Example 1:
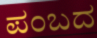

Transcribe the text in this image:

ಪಂಬದ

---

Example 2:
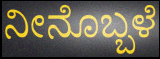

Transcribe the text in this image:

ನೀನೊಬ್ಬಳೆ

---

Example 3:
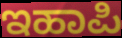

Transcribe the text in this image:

ಇಹಾಪಿ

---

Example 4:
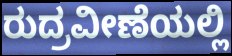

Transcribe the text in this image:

ರುದ್ರವೀಣೆಯಲ್ಲಿ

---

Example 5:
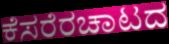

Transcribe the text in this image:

ಕೆಸರೆರಚಾಟದ